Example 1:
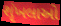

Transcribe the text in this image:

શૃંખલાઓ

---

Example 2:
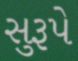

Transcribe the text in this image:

સુરૂપે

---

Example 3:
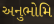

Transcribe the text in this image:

અનુભોમિ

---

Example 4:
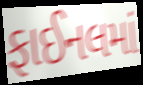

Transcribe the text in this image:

ફાઈનલમાં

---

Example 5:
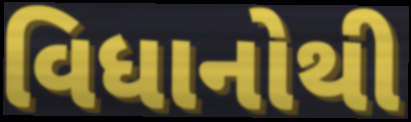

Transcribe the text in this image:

વિધાનોથી